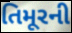
તિમૂરની